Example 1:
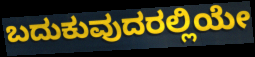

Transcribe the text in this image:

ಬದುಕುವುದರಲ್ಲಿಯೇ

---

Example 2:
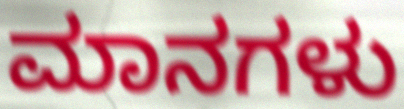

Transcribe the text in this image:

ಮಾನಗಳು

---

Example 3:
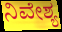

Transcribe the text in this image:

ನಿವೇಶ್ಯ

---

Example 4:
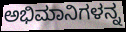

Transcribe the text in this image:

ಅಭಿಮಾನಿಗಳನ್ನ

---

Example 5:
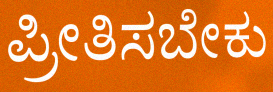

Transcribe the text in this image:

ಪ್ರೀತಿಸಬೇಕು